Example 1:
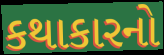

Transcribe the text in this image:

કથાકારનો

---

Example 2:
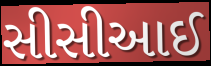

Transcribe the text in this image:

સીસીઆઈ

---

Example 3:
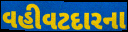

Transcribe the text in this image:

વહીવટદારના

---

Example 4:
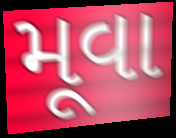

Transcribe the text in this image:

મૂવા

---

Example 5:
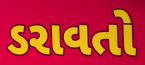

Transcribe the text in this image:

ડરાવતો